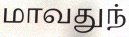
மாவதுந்